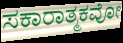
ಸಕಾರಾತ್ಮಕವೋ